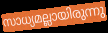
സാധ്യമല്ലായിരുന്നു